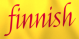
finnish